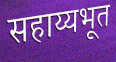
सहाय्यभूत